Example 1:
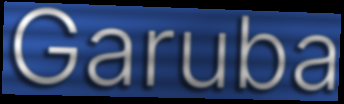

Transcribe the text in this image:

Garuba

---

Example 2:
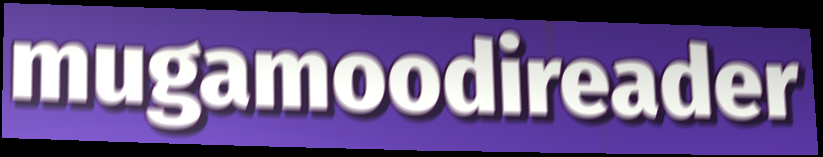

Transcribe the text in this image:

mugamoodireader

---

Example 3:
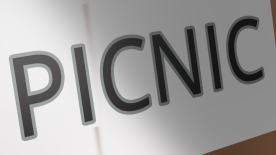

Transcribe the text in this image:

PICNIC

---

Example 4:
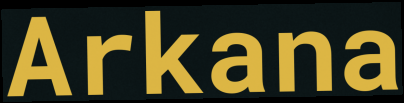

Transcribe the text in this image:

Arkana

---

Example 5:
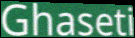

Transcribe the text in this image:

Ghaseti